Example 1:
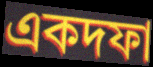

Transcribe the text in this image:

একদফা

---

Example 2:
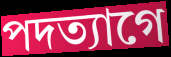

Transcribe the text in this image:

পদত্যাগে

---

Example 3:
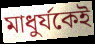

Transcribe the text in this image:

মাধুর্যকেই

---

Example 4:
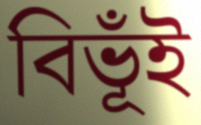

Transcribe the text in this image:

বিভূঁই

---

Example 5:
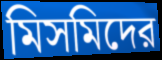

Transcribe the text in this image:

মিসমিদের